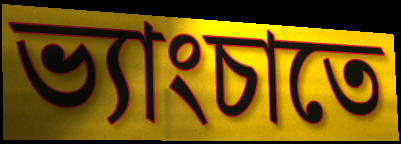
ভ্যাংচাতে